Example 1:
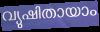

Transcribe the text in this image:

വ്യുഷിതായാം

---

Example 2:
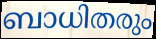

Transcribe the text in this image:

ബാധിതരും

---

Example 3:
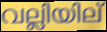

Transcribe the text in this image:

വല്ലിയില്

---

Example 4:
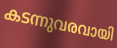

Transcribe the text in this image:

കടന്നുവരവായി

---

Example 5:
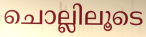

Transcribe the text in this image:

ചൊല്ലിലൂടെ